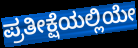
ಪ್ರತೀಕ್ಷೆಯಲ್ಲಿಯೇ